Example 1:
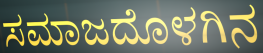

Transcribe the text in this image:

ಸಮಾಜದೊಳಗಿನ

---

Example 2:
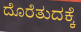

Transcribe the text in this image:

ದೊರೆತುದಕ್ಕೆ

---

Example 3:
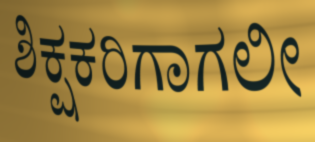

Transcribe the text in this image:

ಶಿಕ್ಷಕರಿಗಾಗಲೀ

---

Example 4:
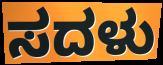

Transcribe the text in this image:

ಸದಳು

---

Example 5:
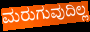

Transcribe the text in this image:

ಮರುಗುವುದಿಲ್ಲ